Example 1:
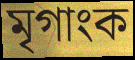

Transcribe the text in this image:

মৃগাংক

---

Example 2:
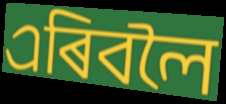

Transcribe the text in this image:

এৰিবলৈ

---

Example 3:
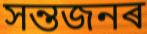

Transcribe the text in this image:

সন্তজনৰ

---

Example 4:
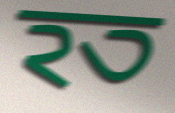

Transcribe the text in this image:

হত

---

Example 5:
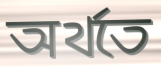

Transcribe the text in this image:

অৰ্থতে